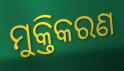
ମୁକ୍ତିକରଣ